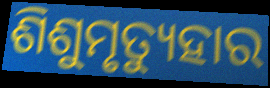
ଶିଶୁମୃତ୍ୟୁହାର